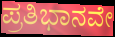
ಪ್ರತಿಭಾನವೇ